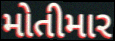
મોતીમાર